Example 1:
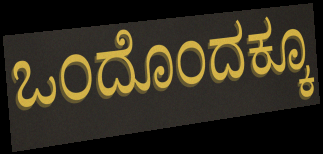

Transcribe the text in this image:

ಒಂದೊಂದಕ್ಕೂ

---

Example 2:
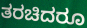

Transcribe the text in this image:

ತರಚಿದರೂ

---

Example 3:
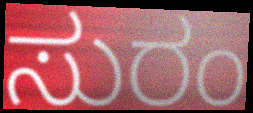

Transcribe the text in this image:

ಸುರಂ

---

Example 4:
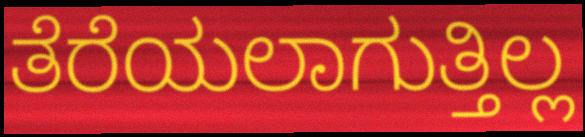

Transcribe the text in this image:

ತೆರೆಯಲಾಗುತ್ತಿಲ್ಲ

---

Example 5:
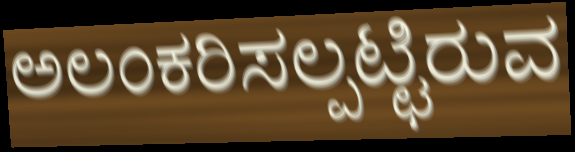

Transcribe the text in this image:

ಅಲಂಕರಿಸಲ್ಪಟ್ಟಿರುವ